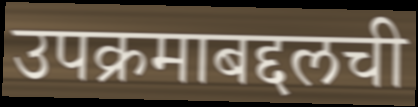
उपक्रमाबद्दलची